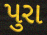
પુરા